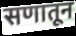
सणातून